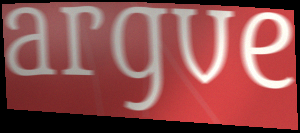
argue